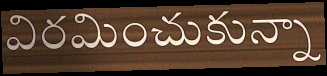
విరమించుకున్నా